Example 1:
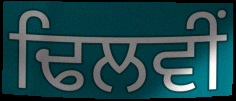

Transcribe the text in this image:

ਢਿਲਵੀਂ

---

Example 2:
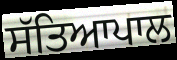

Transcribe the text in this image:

ਸੱਤਿਆਪਾਲ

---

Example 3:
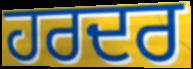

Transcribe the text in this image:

ਹਰਦਰ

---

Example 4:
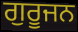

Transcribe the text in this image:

ਗੁਰੂਜਨ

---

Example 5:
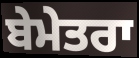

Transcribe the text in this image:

ਬੇਮੇਤਰਾ